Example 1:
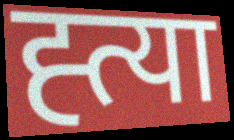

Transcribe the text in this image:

ह्त्या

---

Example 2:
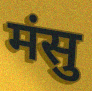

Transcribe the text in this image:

मंसु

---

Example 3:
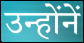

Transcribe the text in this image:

उन्होंनें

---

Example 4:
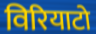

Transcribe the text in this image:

विरियाटो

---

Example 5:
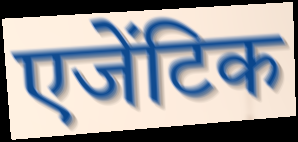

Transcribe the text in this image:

एजेंटिक